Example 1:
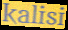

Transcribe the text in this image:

kalisi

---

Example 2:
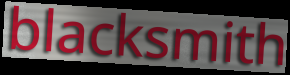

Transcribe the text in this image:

blacksmith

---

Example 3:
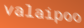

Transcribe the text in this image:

valaipoo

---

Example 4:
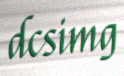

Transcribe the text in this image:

dcsimg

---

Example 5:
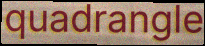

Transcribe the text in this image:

quadrangle